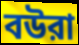
বউরা